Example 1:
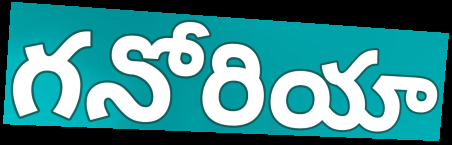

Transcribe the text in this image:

గనోరియా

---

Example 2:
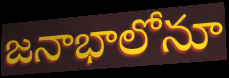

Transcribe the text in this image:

జనాభాలోనూ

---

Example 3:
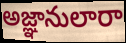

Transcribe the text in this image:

అజ్ఞానులారా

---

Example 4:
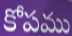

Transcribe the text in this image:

కోపము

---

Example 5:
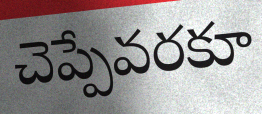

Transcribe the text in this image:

చెప్పేవరకూ